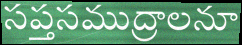
సప్తసముద్రాలనూ